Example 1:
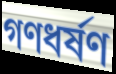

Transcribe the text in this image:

গণধর্ষণ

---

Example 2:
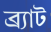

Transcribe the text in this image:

ব্র্যাট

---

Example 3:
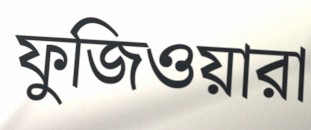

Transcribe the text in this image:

ফুজিওয়ারা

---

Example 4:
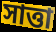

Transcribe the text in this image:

সাত্তা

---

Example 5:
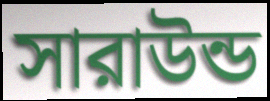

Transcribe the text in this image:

সারাউন্ড